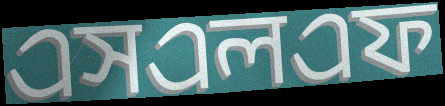
এসএলএফ